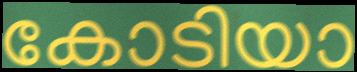
കോടിയാ